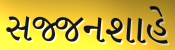
સજ્જનશાહે